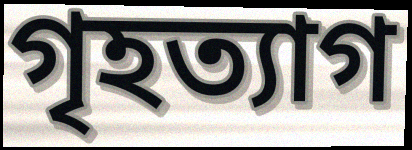
গৃহত্যাগ